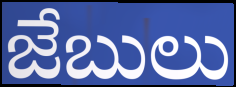
జేబులు